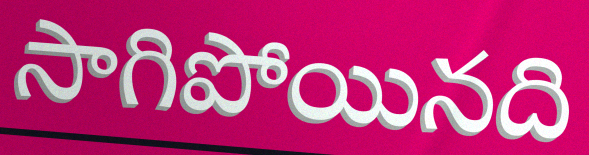
సాగిపోయినది